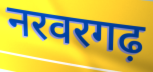
नरवरगढ़